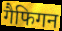
गैफिगन